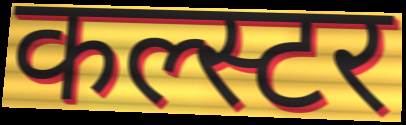
कल्स्टर